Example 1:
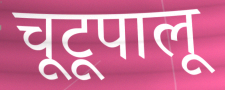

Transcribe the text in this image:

चूटूपालू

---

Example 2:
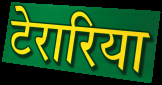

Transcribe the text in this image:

टेरारिया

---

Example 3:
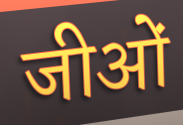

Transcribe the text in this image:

जीओं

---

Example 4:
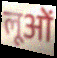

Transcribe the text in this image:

लूओं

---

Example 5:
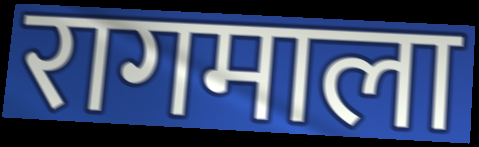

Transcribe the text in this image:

रागमाला